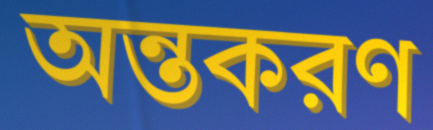
অন্তকরণ